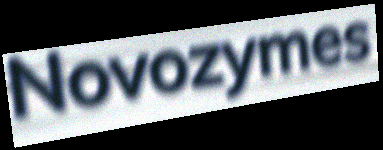
Novozymes